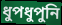
ধুপধুপুনি